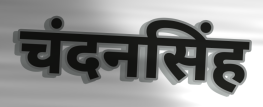
चंदनसिंह